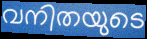
വനിതയുടെ